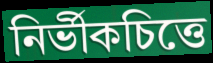
নির্ভীকচিত্তে